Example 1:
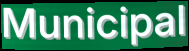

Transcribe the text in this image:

Municipal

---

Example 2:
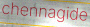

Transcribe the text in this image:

chennagide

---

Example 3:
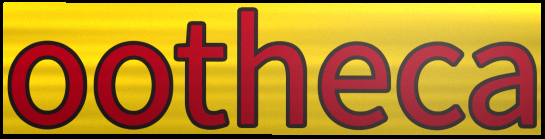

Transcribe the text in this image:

ootheca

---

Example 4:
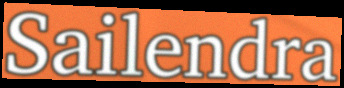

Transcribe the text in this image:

Sailendra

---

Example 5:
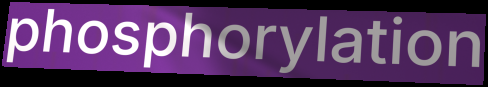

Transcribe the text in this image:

phosphorylation